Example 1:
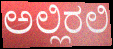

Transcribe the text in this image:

ಅಲ್ಲಿರಲಿ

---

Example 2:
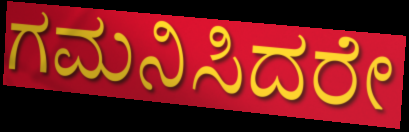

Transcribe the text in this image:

ಗಮನಿಸಿದರೇ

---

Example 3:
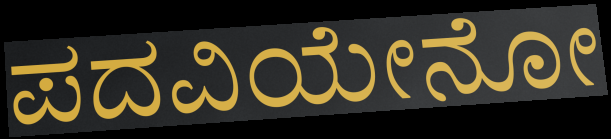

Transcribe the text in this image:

ಪದವಿಯೇನೋ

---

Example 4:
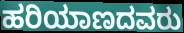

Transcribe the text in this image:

ಹರಿಯಾಣದವರು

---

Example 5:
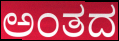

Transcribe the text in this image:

ಅಂತದ